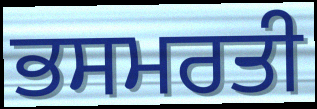
ਭਸਮਰਤੀ